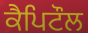
ਕੈਪਿਟੌਲ